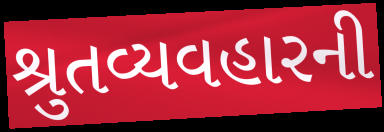
શ્રુતવ્યવહારની